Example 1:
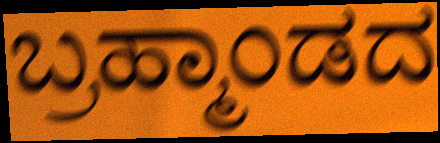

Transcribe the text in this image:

ಬ್ರಹ್ಮಾಂಡದ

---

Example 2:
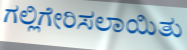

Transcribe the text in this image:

ಗಲ್ಲಿಗೇರಿಸಲಾಯಿತು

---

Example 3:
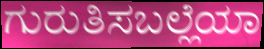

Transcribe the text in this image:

ಗುರುತಿಸಬಲ್ಲೆಯಾ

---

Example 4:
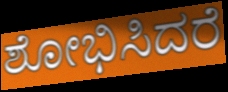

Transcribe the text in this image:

ಶೋಭಿಸಿದರೆ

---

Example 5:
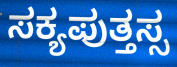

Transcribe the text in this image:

ಸಕ್ಯಪುತ್ತಸ್ಸ